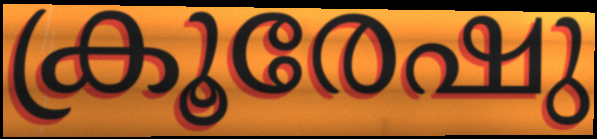
ക്രൂരേഷു